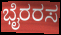
ಭೈರರಸ